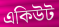
একিউট